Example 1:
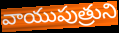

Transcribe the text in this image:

వాయుపుత్రుని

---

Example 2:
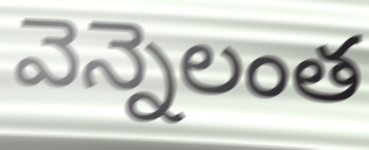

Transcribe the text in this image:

వెన్నెలంత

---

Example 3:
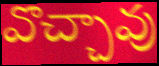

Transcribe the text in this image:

వొచ్చావు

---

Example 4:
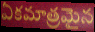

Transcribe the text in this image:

ఏకమాత్రమైన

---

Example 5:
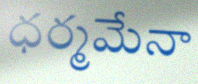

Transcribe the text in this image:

ధర్మమేనా